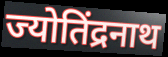
ज्योतिंद्रनाथ